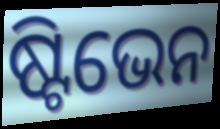
ଷ୍ଟିଭେନ